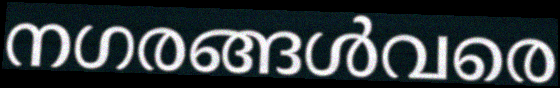
നഗരങ്ങൾവരെ